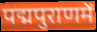
पद्मपुराणमें